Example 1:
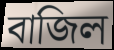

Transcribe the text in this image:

বাজিল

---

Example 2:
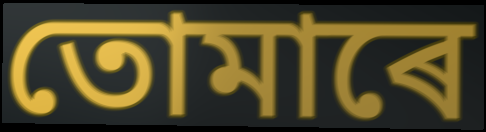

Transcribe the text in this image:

তোমাৰে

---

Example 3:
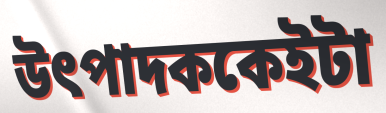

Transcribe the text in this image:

উৎপাদককেইটা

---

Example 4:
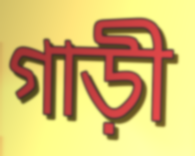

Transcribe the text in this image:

গাড়ী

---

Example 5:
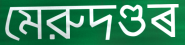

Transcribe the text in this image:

মেৰুদণ্ডৰ